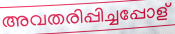
അവതരിപ്പിച്ചപ്പോള്